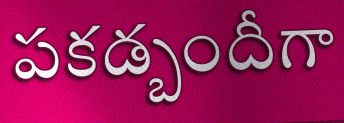
పకడ్బందీగా